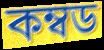
কম্বড